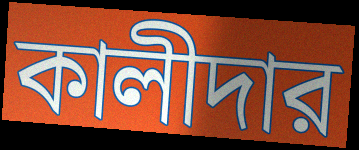
কালীদার